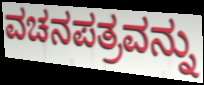
ವಚನಪತ್ರವನ್ನು